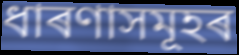
ধাৰণাসমূহৰ